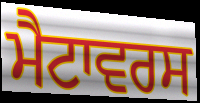
ਮੈਟਾਵਰਸ